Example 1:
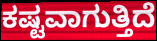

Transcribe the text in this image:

ಕಷ್ಟವಾಗುತ್ತಿದೆ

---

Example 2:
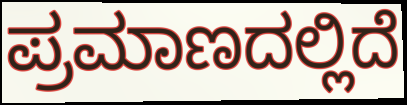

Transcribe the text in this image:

ಪ್ರಮಾಣದಲ್ಲಿದೆ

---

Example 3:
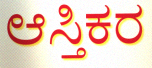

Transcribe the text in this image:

ಆಸ್ತಿಕರ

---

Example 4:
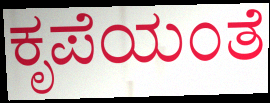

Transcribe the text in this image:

ಕೃಪೆಯಂತೆ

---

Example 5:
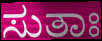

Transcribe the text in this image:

ಸುತಾಃ